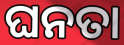
ଘନତା